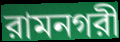
রামনগরী